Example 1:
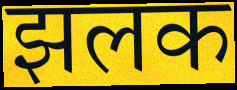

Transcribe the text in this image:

झलक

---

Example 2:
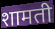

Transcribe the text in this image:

शामती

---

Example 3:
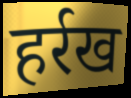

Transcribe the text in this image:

हर्रख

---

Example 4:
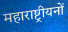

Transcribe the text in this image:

महाराष्ट्रीयनों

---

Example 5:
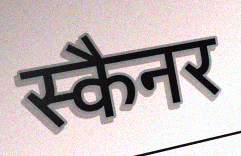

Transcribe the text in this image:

स्कैनर